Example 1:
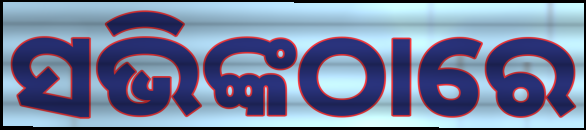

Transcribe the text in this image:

ସଭିଙ୍କଠାରେ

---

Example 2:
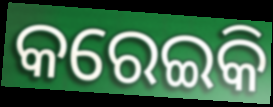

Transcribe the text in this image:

କରେଇକି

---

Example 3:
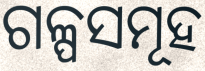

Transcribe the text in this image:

ଗଳ୍ପସମୂହ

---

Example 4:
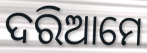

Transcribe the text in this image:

ଦରିଆମେ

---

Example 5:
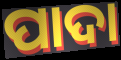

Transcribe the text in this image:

ପାଦା